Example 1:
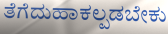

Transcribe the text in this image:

ತೆಗೆದುಹಾಕಲ್ಪಡಬೇಕು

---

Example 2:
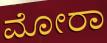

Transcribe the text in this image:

ಮೋರಾ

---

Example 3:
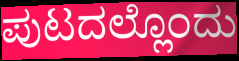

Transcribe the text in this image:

ಪುಟದಲ್ಲೊಂದು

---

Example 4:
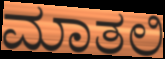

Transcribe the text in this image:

ಮಾತಲಿ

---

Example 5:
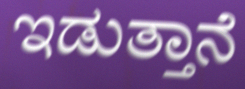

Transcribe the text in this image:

ಇಡುತ್ತಾನೆ